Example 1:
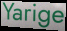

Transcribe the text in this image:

Yarige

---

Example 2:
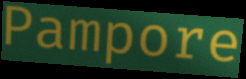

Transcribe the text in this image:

Pampore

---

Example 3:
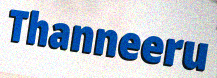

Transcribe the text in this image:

Thanneeru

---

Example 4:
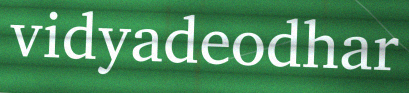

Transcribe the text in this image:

vidyadeodhar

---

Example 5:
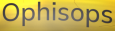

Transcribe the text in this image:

Ophisops